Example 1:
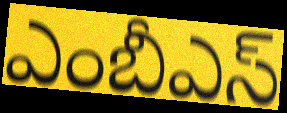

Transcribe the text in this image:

ఎంబీఎస్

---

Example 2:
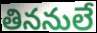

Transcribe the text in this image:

తిననులే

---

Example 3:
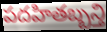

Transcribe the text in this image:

పదహితబ్బన్తి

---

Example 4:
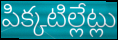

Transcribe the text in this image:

పిక్కటిల్లేట్లు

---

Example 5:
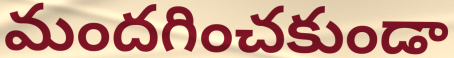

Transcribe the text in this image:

మందగించకుండా